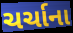
ચર્ચાના